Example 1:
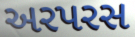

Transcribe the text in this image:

અરપરસ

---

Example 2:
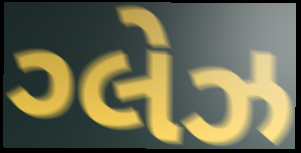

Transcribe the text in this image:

ગ્લેઝ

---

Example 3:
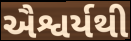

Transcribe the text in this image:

ઐશ્વર્યથી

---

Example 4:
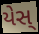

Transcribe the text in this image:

યેસ્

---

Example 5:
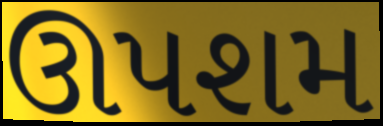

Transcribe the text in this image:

ઊપશમ